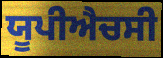
ਯੂਪੀਐਚਸੀ